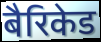
बैरिकेड